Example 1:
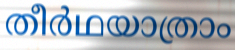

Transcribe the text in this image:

തീർഥയാത്രാം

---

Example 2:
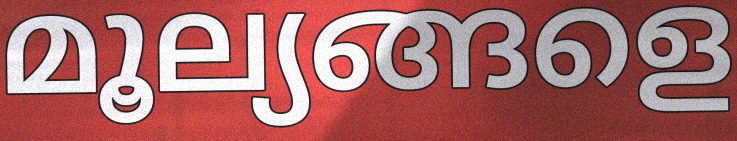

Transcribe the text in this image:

മൂല്യങ്ങളെ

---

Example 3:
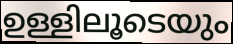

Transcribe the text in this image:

ഉള്ളിലൂടെയും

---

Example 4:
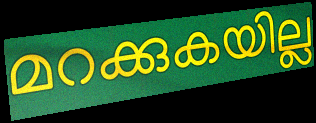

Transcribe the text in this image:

മറക്കുകയില്ല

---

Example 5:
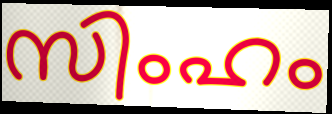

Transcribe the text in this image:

സിംഹം